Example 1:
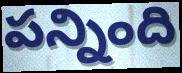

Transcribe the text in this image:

పన్నింది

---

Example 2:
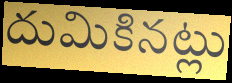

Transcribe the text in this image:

దుమికినట్లు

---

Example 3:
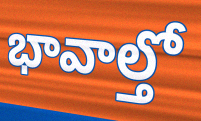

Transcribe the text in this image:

భావాల్తో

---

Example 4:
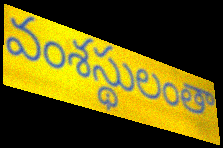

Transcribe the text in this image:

వంశస్థులంతా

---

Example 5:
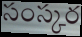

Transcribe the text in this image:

సంస్కర